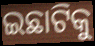
ଇଛାଟିକୁ